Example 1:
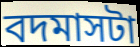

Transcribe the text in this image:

বদমাসটা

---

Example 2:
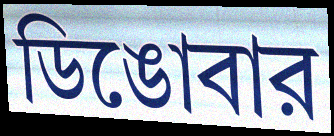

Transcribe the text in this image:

ডিঙোবার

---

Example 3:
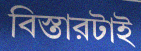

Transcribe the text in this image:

বিস্তারটাই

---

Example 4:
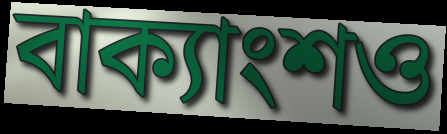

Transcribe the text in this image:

বাক্যাংশও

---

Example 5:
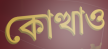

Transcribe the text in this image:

কোত্থাও